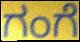
ಗಂಗೆ